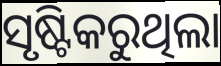
ସୃଷ୍ଟିକରୁଥିଲା